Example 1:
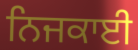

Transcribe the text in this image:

ਨਿਜਕਾਈ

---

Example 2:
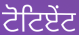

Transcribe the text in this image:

ਟੋਟਿਏਂਟ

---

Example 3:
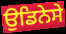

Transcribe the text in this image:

ਉਡਿਨੇਸੇ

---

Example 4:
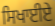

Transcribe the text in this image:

ਸਿਖਾਈਏ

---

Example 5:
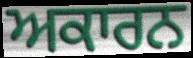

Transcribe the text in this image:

ਅਕਾਰਨ